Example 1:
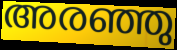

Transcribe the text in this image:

അരഞ്ഞു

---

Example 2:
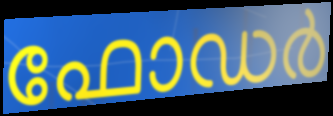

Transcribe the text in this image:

ഫോഡർ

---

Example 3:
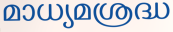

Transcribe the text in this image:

മാധ്യമശ്രദ്ധ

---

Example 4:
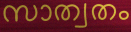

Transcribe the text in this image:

സാത്വതം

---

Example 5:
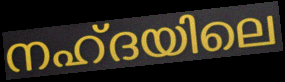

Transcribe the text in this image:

നഹ്ദയിലെ